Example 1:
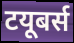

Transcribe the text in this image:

टयूबर्स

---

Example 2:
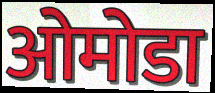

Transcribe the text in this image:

ओमोडा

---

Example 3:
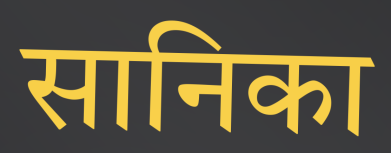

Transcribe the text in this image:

सानिका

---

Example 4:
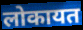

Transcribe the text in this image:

लोकायत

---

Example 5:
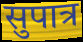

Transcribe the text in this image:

सुपात्र